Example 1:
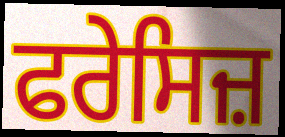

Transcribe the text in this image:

ਫਰੇਸਿਜ਼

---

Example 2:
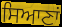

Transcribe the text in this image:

ਸਿਆਣਾਂ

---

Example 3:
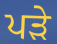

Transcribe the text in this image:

ਪੜੇ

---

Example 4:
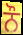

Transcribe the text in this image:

ਨੌ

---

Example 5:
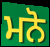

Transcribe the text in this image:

ਮਨੋ